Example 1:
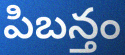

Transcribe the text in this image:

పిబన్తం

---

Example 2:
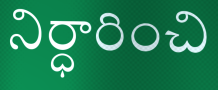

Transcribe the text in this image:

నిర్ధారించి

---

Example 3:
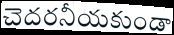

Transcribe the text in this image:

చెదరనీయకుండా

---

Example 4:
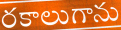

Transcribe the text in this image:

రకాలుగాను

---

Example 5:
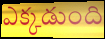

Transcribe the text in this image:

ఎక్కడుంది